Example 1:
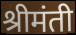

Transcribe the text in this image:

श्रीमंती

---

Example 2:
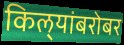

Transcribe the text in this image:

किल्यांबरोबर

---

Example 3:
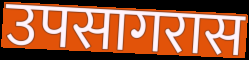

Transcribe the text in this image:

उपसागरास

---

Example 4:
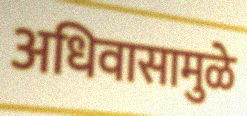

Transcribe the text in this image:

अधिवासामुळे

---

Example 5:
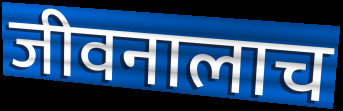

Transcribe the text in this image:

जीवनालाच